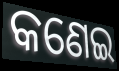
କଣେଇ